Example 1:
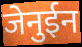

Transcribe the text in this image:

जेनुईन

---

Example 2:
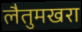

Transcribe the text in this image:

लैतुमखरा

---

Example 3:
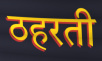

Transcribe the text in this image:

ठहरती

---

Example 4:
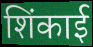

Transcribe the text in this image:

शिंकाई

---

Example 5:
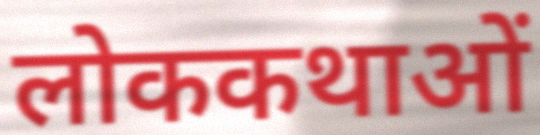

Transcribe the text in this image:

लोककथाओं